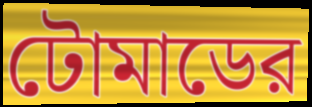
টোমাডের